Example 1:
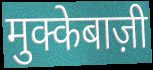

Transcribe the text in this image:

मुक्केबाज़ी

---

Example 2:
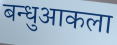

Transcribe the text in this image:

बन्धुआकला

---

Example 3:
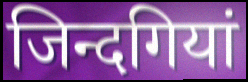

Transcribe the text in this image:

जिन्दगियां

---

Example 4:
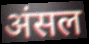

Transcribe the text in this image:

अंसल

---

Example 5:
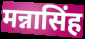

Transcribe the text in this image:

मन्नासिंह